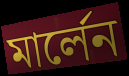
মার্লেন